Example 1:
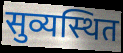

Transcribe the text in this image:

सुव्यस्थित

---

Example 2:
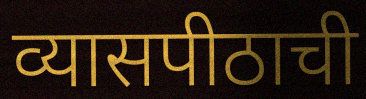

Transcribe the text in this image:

व्यासपीठाची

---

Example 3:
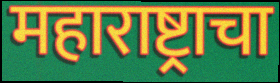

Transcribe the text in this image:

महाराष्ट्राचा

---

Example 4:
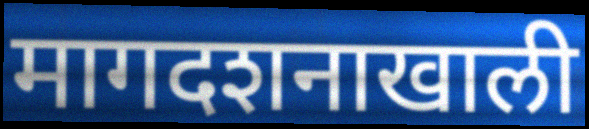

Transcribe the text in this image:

मागदशनाखाली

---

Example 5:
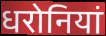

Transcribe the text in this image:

धरोनियां